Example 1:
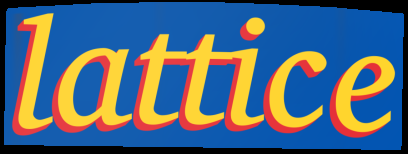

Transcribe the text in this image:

lattice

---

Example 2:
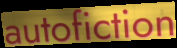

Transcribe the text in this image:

autofiction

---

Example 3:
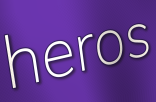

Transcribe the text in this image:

heros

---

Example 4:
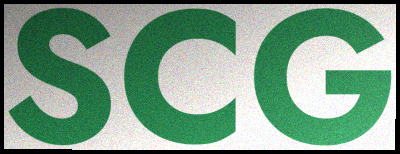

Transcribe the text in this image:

SCG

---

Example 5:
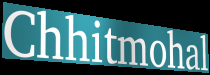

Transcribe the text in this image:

Chhitmohal